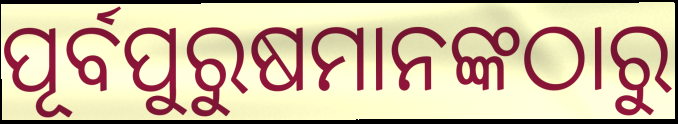
ପୂର୍ବପୁରୁଷମାନଙ୍କଠାରୁ